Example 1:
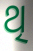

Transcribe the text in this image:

ଥି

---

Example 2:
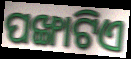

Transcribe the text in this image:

ପଙ୍ଖାଟିଏ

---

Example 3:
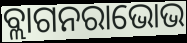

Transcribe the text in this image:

ବ୍ଲାଗନରାଭୋଭ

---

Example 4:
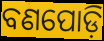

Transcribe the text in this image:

ବଣପୋଡ଼ି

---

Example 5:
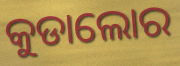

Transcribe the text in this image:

କୁଡାଲୋର